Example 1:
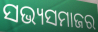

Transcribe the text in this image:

ସଭ୍ୟସମାଜର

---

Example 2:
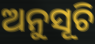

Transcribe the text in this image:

ଅନୁସୂଚି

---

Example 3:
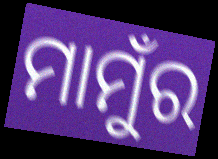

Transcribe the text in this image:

ମାମୁଁର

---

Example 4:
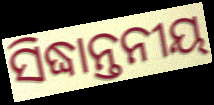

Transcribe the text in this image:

ସିଦ୍ଧାନ୍ତନୀୟ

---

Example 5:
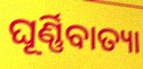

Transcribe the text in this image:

ଘୂର୍ଣ୍ଣିବାତ୍ୟା